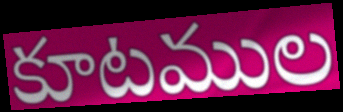
కూటముల